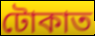
টোকাত